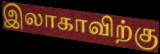
இலாகாவிற்கு